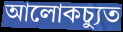
আলোকচ্যুত